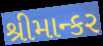
શ્રીમાન્કર